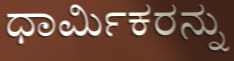
ಧಾರ್ಮಿಕರನ್ನು